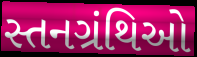
સ્તનગ્રંથિઓ